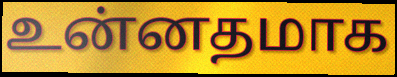
உன்னதமாக